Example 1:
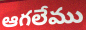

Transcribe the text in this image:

ఆగలేము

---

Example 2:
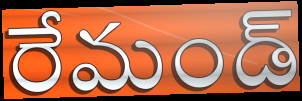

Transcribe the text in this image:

రేమండ్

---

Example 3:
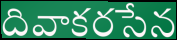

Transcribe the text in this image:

దివాకరసేన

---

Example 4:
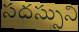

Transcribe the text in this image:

సదస్సుని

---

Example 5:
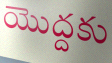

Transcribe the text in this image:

యొద్దకు